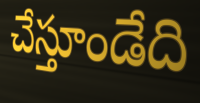
చేస్తూండేది